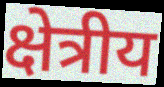
क्षेत्रीय